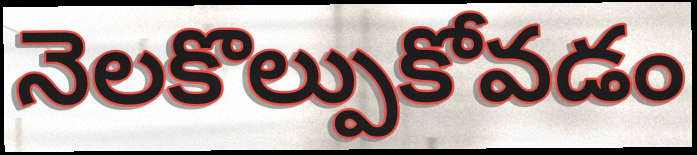
నెలకొల్పుకోవడం